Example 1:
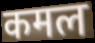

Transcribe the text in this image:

कमल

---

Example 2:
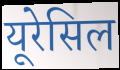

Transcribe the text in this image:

यूरेसिल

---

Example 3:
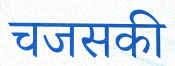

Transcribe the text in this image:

चजसकी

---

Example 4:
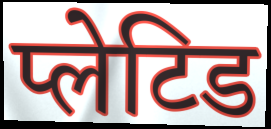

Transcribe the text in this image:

प्लेटिड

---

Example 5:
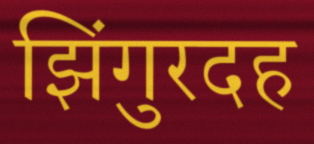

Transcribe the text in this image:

झिंगुरदह